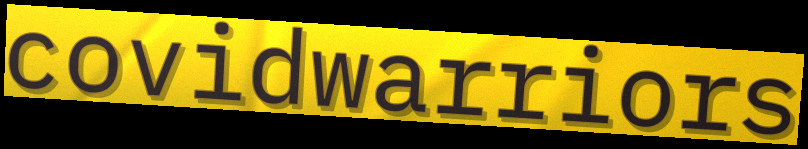
covidwarriors